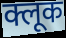
क्लूक